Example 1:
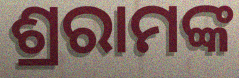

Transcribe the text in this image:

ଶ୍ରରାମଙ୍କ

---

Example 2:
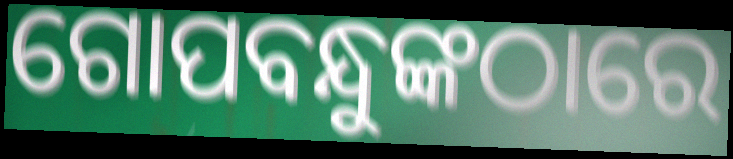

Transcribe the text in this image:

ଗୋପବନ୍ଧୁଙ୍କଠାରେ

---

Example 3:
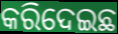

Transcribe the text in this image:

କରିଦେଇଛ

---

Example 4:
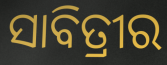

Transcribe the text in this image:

ସାବିତ୍ରୀର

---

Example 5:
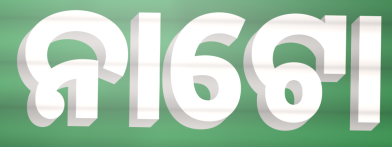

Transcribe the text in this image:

ନାଟୋ